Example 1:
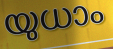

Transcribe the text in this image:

യുധാം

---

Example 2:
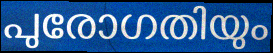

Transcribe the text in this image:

പുരോഗതിയും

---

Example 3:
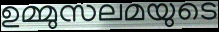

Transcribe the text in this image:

ഉമ്മുസലമയുടെ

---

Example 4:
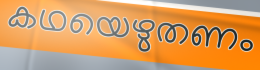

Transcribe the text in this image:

കഥയെഴുതണം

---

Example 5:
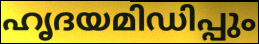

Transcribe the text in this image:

ഹൃദയമിഡിപ്പും